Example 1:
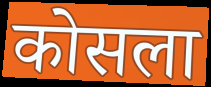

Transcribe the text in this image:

कोसला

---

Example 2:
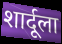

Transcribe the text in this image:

शार्दूला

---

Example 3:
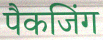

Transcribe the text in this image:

पैकजिंग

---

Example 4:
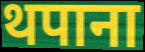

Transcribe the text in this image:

थपाना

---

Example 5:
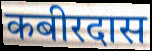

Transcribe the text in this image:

कबीरदास